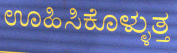
ಊಹಿಸಿಕೊಳ್ಳುತ್ತ